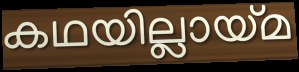
കഥയില്ലായ്മ